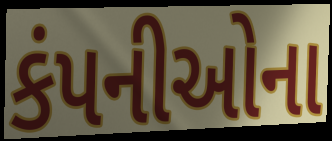
કંપનીઓના